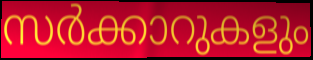
സർക്കാറുകളും